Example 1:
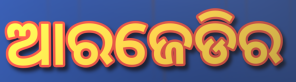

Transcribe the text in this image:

ଆରଜେଡିର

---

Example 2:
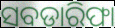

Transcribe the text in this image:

ସବଡାରିଫା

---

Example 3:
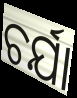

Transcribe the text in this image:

ଚର୍ଯା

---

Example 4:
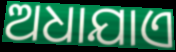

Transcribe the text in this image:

ଅଧାଯାଏ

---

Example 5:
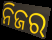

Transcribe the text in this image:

ନିଜର